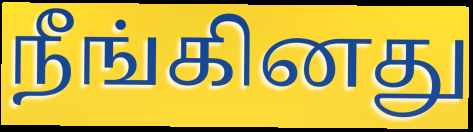
நீங்கினது